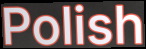
Polish